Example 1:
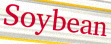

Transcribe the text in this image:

Soybean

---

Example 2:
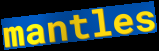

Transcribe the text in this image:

mantles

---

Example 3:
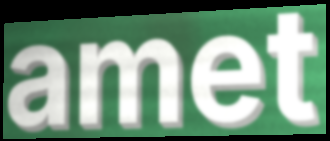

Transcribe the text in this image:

amet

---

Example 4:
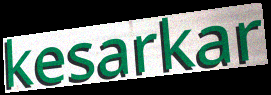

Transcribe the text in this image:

kesarkar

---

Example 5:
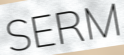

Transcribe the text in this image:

SERM